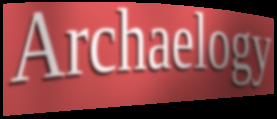
Archaelogy